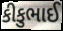
કીકુભાઈ